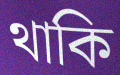
থাকি